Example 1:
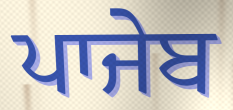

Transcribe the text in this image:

ਪਾਜੇਬ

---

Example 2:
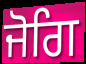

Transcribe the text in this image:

ਜੋਗਿ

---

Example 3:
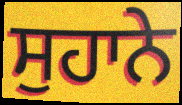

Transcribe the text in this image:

ਸੁਹਾਨੇ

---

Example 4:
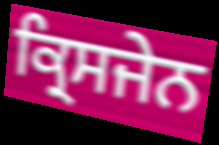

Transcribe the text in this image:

ਕ੍ਰਿਸਜੇਨ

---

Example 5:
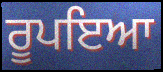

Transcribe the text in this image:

ਰੂਪਇਆ